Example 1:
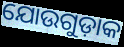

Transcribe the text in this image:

ଯୋଉଗୁଡ଼ାକ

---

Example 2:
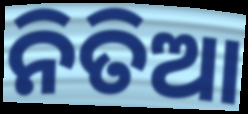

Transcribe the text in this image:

ନିତିଆ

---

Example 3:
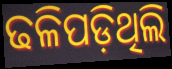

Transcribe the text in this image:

ଢଳିପଡ଼ିଥିଲି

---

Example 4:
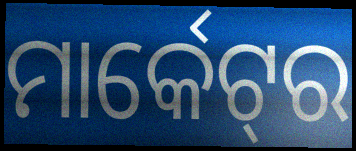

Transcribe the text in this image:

ମାର୍କେଟ୍‌ର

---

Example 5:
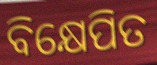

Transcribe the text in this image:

ବିକ୍ଷେପିତ